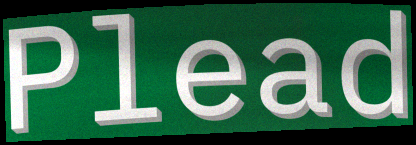
Plead